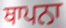
ਥਾਪਨਾ